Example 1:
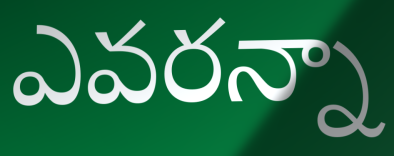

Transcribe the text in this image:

ఎవరన్నా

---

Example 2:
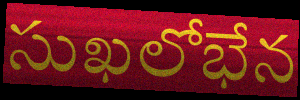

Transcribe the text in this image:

సుఖలోభేన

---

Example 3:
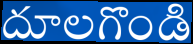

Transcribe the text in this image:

దూలగొండి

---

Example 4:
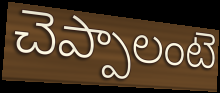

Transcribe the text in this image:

చెప్పాలంటె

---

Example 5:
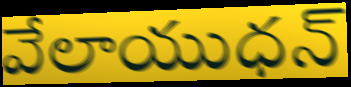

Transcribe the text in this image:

వేలాయుధన్